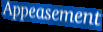
Appeasement